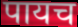
पायच